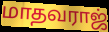
மாதவராஜ்